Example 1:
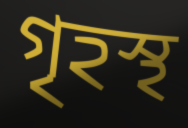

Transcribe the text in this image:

গৃহস্থ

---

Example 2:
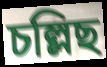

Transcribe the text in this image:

চল্লিছ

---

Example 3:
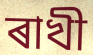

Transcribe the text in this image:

ৰাখী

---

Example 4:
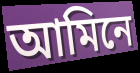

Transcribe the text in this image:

আমিনে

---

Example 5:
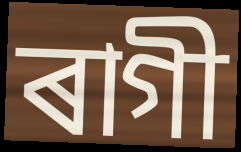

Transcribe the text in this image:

ৰাগী